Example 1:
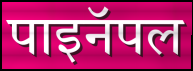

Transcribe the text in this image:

पाइनॅपल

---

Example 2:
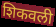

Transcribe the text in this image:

शिकवली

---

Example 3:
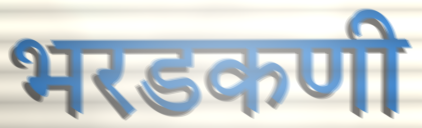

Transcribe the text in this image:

भरडकणी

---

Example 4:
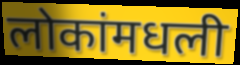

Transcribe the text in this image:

लोकांमधली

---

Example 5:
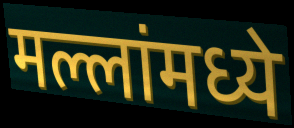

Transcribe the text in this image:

मल्लांमध्ये